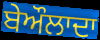
ਬੇਔਲਾਦਾ